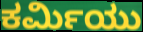
ಕರ್ಮಿಯು